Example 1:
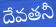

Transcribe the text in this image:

దేవతనీ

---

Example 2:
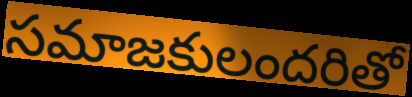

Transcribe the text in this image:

సమాజకులందరితో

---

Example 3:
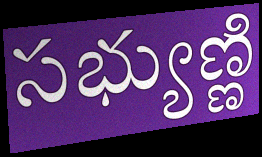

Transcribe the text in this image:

సభ్యుణ్ణి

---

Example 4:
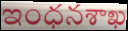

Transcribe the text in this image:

ఇంధనశాఖ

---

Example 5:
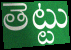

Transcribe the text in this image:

తెట్టు